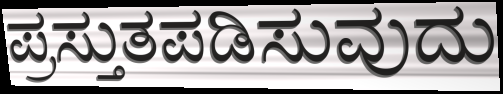
ಪ್ರಸ್ತುತಪಡಿಸುವುದು